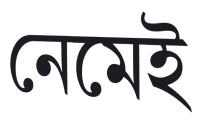
নেমেই